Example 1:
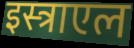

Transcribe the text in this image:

इस्त्राएल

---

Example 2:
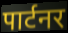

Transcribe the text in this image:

पार्टनर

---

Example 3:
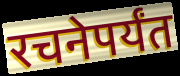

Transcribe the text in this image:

रचनेपर्यंत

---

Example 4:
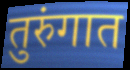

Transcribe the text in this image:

तुरुंगात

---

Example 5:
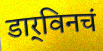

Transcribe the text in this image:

डार्विनचं